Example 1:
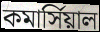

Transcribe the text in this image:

কমার্সিয়াল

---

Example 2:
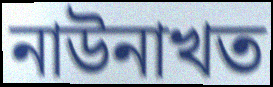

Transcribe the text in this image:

নাউনাখত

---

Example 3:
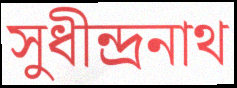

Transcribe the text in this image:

সুধীন্দ্রনাথ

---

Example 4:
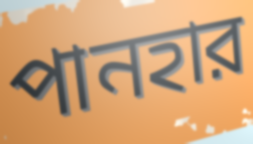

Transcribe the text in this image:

পানহার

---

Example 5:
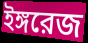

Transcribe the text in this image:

ইঙ্গরেজ